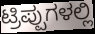
ಟ್ರಿಪ್ಪುಗಳಲ್ಲಿ